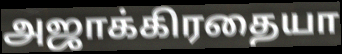
அஜாக்கிரதையா